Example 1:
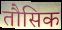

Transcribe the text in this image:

तौसिक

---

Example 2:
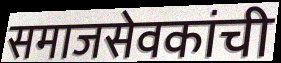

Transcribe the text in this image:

समाजसेवकांची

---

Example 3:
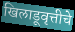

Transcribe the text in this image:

खिलाडूवृत्तीचे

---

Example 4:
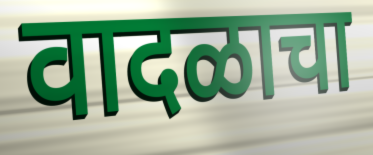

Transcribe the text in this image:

वादळाचा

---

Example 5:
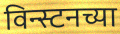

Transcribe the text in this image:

विन्स्टनच्या